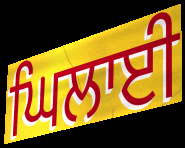
ਘਿਲਾਈ